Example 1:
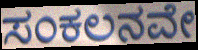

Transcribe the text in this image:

ಸಂಕಲನವೇ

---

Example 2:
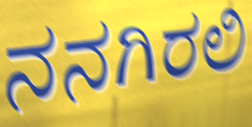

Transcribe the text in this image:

ನನಗಿರಲಿ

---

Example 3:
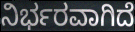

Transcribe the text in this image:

ನಿರ್ಭರವಾಗಿದೆ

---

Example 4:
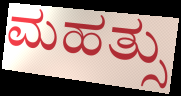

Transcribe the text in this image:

ಮಹತ್ಸು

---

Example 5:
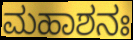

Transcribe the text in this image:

ಮಹಾಶನಃ